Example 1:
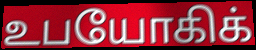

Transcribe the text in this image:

உபயோகிக்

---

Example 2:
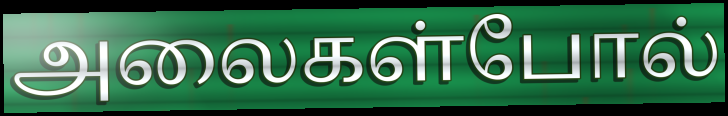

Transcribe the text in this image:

அலைகள்போல்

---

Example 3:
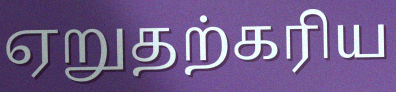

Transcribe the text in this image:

ஏறுதற்கரிய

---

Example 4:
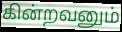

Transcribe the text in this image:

கின்றவனும்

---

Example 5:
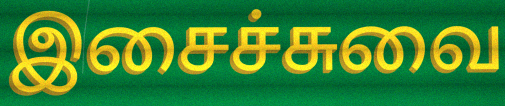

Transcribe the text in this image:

இசைச்சுவை